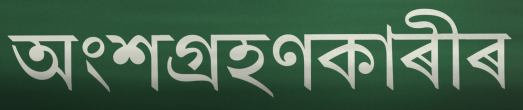
অংশগ্ৰহণকাৰীৰ